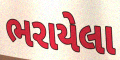
ભરાયેલા